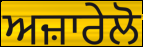
ਅਜ਼ਾਰੇਲੋ